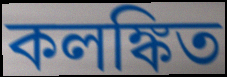
কলঙ্কিত